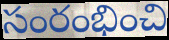
సంరంభించి